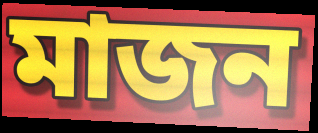
মাজন